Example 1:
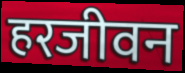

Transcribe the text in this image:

हरजीवन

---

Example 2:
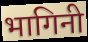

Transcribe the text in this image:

भागिनी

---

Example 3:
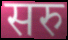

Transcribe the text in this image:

सरु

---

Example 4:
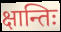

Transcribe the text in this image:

क्षान्तिः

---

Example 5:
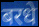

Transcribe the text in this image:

बरधे